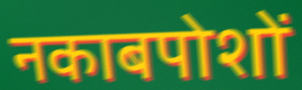
नकाबपोशों